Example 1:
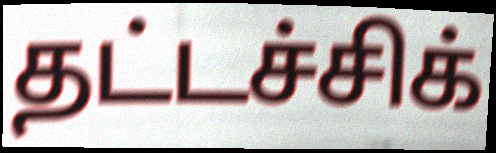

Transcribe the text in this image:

தட்டச்சிக்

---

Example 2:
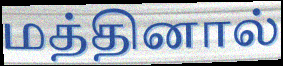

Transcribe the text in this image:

மத்தினால்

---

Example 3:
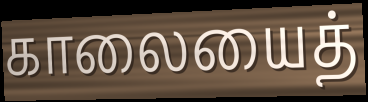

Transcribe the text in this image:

காலையைத்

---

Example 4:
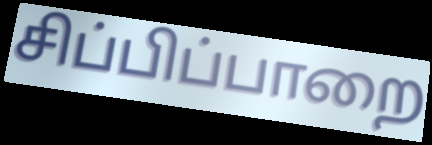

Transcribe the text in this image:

சிப்பிப்பாறை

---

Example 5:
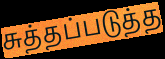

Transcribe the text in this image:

சுத்தப்படுத்த